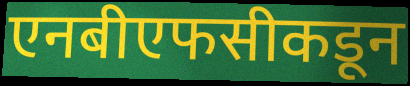
एनबीएफसीकडून